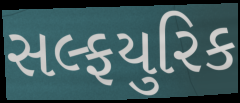
સલ્ફયુરિક